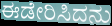
ಈಡೇರಿಸಿದನು